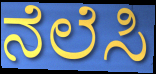
ನೆಲೆಸಿ